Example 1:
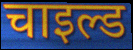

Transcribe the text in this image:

चाइल्ड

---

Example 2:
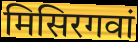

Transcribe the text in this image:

मिसिरगवां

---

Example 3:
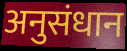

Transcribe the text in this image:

अनुसंधान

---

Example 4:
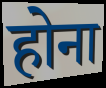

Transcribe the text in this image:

होना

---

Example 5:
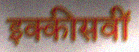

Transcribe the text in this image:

इक्कीसवीं